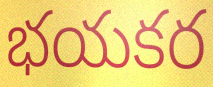
భయకర